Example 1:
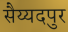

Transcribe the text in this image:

सैय्यदपुर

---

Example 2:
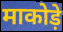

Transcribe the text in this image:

माकोड़े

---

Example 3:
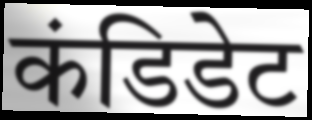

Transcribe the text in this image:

कंडिडेट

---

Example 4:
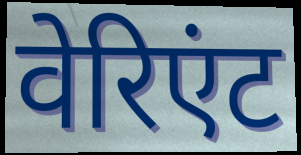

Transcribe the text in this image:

वेरिएंट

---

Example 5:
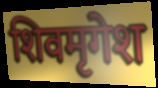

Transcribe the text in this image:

शिवमृगेश